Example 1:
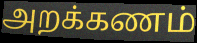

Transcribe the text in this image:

அறக்கணம்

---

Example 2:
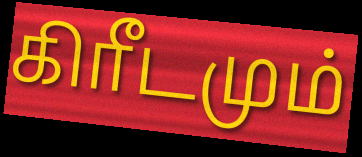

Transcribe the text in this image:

கிரீடமும்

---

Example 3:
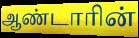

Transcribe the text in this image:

ஆண்டாரின்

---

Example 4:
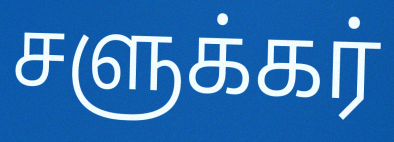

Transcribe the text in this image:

சளுக்கர்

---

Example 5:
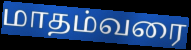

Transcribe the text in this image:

மாதம்வரை